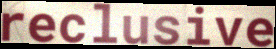
reclusive